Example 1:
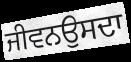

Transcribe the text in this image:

ਜੀਵਨਉਸਦਾ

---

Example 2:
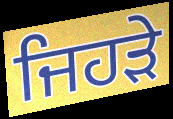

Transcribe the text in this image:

ਜਿਹਡ਼ੇ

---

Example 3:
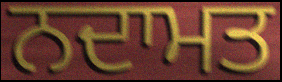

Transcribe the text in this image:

ਨਦਾਮਤ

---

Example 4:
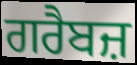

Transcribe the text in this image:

ਗਰੈਬਜ਼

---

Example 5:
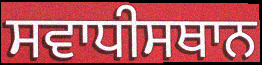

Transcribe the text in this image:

ਸਵਾਧੀਸਥਾਨ